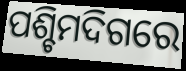
ପଶ୍ଚିମଦିଗରେ